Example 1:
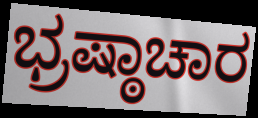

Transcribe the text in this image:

ಭ್ರಷ್ಠಾಚಾರ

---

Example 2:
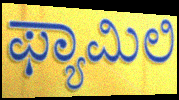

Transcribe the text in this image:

ಫ್ಯಾಮಿಲಿ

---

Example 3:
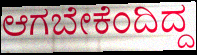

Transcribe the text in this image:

ಆಗಬೇಕೆಂದಿದ್ದ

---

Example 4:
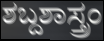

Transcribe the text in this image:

ಶಬ್ದಶಾಸ್ತ್ರಂ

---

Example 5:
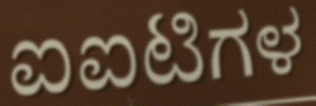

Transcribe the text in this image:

ಐಐಟಿಗಳ